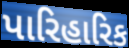
પારિહારિક